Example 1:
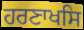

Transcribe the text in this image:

ਹਰਣਾਖਸਿ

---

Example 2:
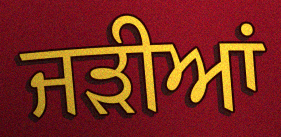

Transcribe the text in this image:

ਜੜੀਆਂ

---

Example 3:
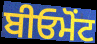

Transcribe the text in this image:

ਬੀਓਮੋਂਟ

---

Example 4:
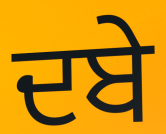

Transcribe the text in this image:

ਦਬੇ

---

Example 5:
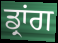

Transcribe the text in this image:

ਡ੍ਰਾਂਗ